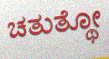
ಚತುತ್ಥೋ